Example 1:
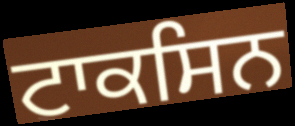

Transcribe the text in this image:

ਟਾਕਸਿਨ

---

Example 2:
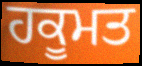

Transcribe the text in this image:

ਹਕੂਮਤ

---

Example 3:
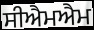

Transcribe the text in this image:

ਸੀਐਮਐਮ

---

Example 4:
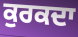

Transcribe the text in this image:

ਕੁਰਕਦਾ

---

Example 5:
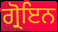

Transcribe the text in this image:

ਗ੍ਰੋਇਨ